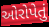
ઓરોપેતું